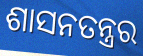
ଶାସନତନ୍ତ୍ରର